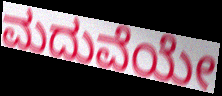
ಮದುವೆಯೇ